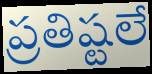
ప్రతిష్టలే